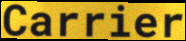
Carrier